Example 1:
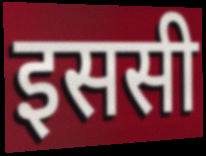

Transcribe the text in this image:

इससी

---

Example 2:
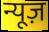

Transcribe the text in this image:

न्‍यूज़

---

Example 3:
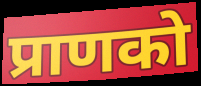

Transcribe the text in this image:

प्राणको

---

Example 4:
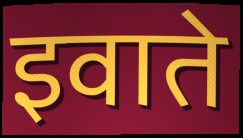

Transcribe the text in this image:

इवाते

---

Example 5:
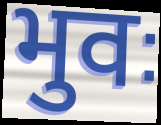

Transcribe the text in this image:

भुवः